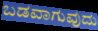
ಬಡವಾಗುವುದು